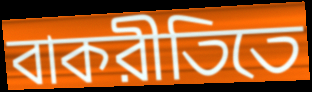
বাকরীতিতে